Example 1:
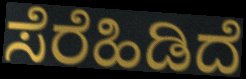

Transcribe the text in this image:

ಸೆರೆಹಿಡಿದೆ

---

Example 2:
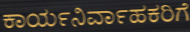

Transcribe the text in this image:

ಕಾರ್ಯನಿರ್ವಾಹಕರಿಗೆ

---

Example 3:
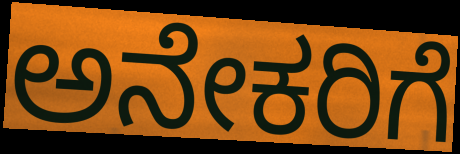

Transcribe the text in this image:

ಅನೇಕರಿಗೆ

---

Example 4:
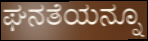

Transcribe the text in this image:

ಘನತೆಯನ್ನೂ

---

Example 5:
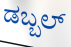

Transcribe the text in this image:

ಡಬ್ಬಲ್